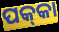
ପକ୍‍କା